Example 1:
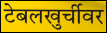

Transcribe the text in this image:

टेबलखुर्चीवर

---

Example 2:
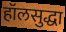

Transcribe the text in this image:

हॉलसुद्धा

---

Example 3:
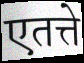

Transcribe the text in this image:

एतत्ते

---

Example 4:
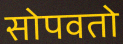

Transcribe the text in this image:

सोपवतो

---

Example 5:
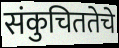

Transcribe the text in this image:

संकुचिततेचे